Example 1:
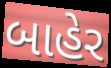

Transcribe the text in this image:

બાહેર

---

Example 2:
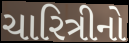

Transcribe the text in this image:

ચારિત્રીનો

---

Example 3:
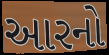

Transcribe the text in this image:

આરનો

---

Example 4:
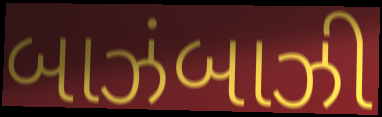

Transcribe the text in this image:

બાઝંબાઝી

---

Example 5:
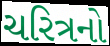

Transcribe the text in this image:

ચરિત્રનો